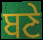
ਬਣੇ